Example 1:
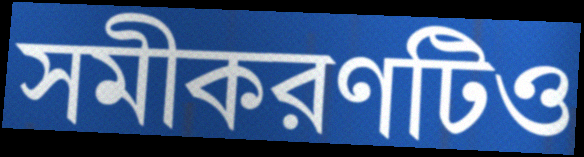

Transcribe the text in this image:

সমীকরণটিও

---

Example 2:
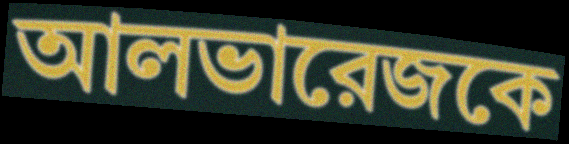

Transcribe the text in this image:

আলভারেজকে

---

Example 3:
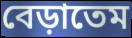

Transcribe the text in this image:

বেড়াতেম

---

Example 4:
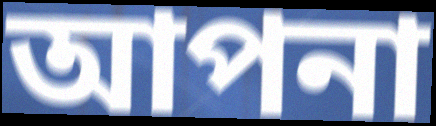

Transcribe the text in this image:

আপনা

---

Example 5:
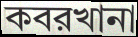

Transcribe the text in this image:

কবরখানা